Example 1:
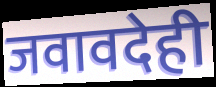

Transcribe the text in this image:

जवावदेही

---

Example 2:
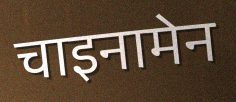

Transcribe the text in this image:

चाइनामेन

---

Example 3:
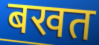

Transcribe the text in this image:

बखत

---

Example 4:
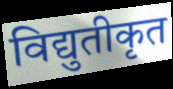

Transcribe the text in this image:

विद्युतीकृत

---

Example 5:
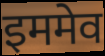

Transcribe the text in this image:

इममेव